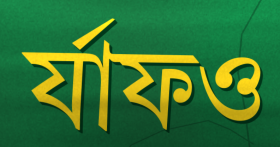
র্যাফও